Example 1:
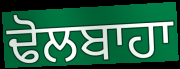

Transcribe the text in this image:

ਢੋਲਬਾਹਾ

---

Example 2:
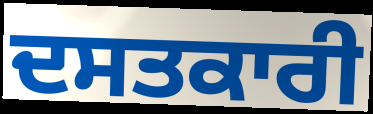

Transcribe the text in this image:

ਦਸਤਕਾਰੀ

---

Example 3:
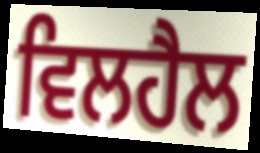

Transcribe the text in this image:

ਵਿਲਹੈਲ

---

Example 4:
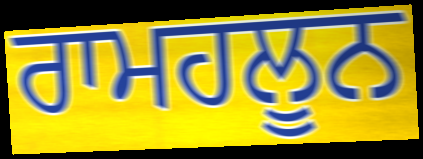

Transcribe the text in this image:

ਰਾਮਹਲੂਨ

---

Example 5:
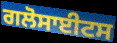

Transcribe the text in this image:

ਗਲੋਸਾਈਟਸ